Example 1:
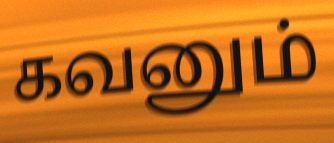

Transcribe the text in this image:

கவனும்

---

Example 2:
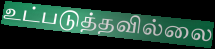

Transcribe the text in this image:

உட்படுத்தவில்லை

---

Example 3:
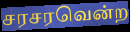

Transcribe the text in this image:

சரசரவென்ற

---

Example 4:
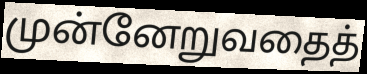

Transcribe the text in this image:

முன்னேறுவதைத்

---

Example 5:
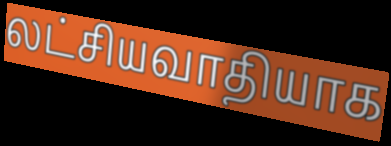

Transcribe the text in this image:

லட்சியவாதியாக